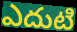
ఎదుటి